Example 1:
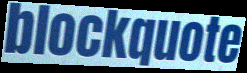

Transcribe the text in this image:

blockquote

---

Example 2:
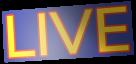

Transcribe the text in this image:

LIVE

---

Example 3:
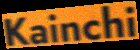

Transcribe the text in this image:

Kainchi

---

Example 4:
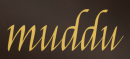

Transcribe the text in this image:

muddu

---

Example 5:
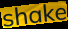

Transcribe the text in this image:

shake